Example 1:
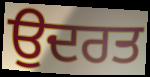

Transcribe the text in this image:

ਉਦਰਤ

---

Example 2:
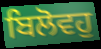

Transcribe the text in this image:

ਬਿਲੋਵਹੁ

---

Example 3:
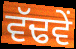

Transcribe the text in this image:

ਵੱਢਵੇਂ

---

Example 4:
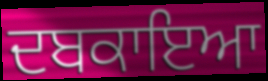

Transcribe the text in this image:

ਦਬਕਾਇਆ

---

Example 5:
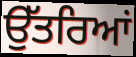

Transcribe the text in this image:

ਉੱਤਰਿਆਂ